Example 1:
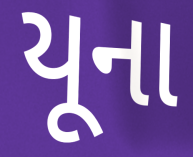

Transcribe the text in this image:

યૂના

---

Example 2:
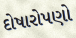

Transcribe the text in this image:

દોષારોપણો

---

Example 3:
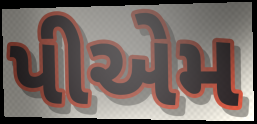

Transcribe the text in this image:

પીએમ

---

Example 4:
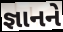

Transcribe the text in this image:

જ્ઞાનને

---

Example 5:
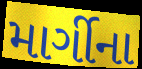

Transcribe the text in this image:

માર્ગીના